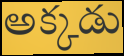
అక్కడు